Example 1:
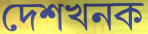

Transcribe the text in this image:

দেশখনক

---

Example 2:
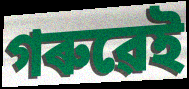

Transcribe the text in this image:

গৰুৱেই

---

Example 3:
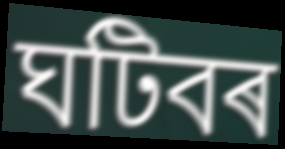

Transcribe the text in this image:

ঘটিবৰ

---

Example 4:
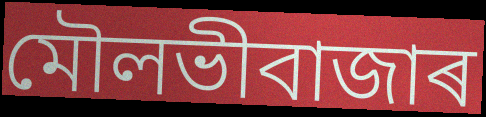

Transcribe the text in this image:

মৌলভীবাজাৰ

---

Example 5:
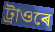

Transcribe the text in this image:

ট্ৰাওৰে